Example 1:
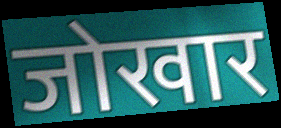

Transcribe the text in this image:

जोखार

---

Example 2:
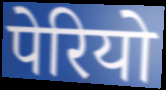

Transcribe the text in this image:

पेरियो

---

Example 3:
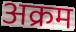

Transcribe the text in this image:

अक्रम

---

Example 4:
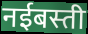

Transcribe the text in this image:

नईबस्ती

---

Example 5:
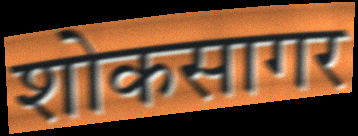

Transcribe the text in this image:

शोकसागर